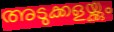
അടുക്കളയ്ക്കും